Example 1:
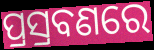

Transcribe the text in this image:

ପ୍ରସ୍ରବଣରେ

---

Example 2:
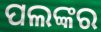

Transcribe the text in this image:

ପଲଙ୍କର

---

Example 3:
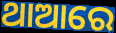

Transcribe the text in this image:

ଥାଆରେ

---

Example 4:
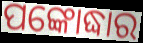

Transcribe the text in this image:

ପଙ୍କୋଦ୍ଧାର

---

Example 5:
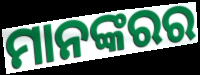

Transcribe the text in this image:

ମାନଙ୍କରର